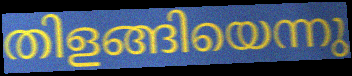
തിളങ്ങിയെന്നു